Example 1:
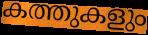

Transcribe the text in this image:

കത്തുകളും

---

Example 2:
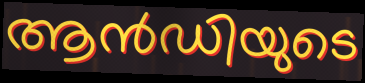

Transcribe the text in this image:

ആൻഡിയുടെ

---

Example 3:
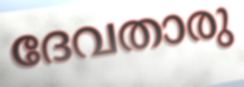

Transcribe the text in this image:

ദേവതാരു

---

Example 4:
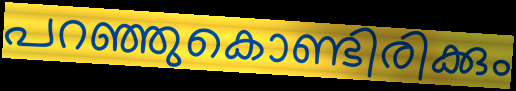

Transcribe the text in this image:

പറഞ്ഞുകൊണ്ടിരിക്കും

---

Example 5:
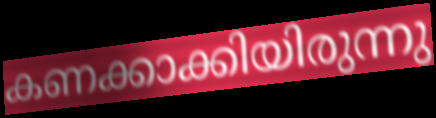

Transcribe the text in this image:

കണക്കാക്കിയിരുന്നു